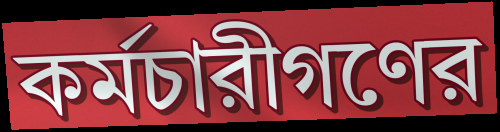
কর্মচারীগণের